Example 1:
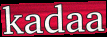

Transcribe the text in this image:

kadaa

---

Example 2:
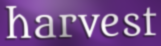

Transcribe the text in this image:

harvest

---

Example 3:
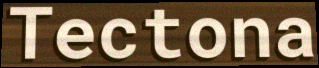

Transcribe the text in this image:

Tectona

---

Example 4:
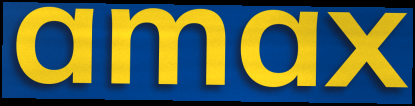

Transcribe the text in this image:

amax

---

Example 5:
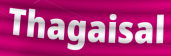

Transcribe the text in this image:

Thagaisal